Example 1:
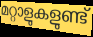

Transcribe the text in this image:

മറ്റാളുകളുണ്ട്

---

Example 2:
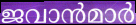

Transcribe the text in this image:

ജവാൻമാർ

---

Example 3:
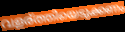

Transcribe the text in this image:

വളര്ത്തിയെടുക്കണം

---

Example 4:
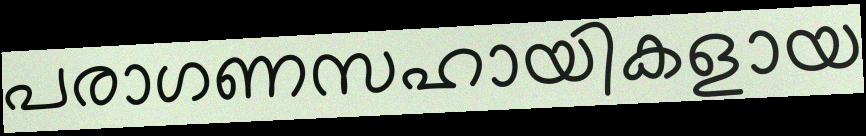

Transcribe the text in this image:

പരാഗണസഹായികളായ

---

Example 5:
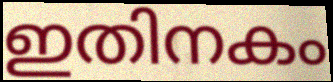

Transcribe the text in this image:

ഇതിനകം